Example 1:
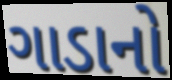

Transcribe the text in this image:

ગાડાનો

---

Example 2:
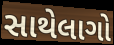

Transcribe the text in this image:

સાથેલાગો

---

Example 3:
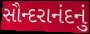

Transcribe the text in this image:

સૌન્દરાનંદનું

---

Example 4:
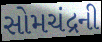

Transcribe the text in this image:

સોમચંદ્રની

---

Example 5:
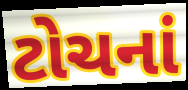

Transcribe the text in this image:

ટોચનાં